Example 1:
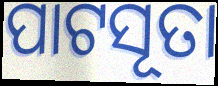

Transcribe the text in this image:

ପାଟସୂତା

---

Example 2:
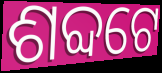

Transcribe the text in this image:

ଶବ୍ଦଟେ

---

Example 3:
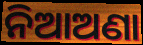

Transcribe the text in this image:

ନିଆଅଣା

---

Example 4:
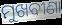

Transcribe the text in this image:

ମୁଖବୀଣା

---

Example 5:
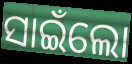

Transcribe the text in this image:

ସାଇଁଲୋ